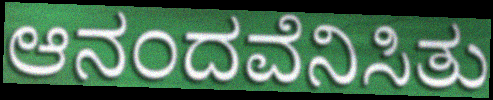
ಆನಂದವೆನಿಸಿತು